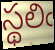
స్థలిఁ